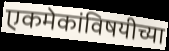
एकमेकांविषयीच्या